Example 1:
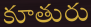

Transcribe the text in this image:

కూతురు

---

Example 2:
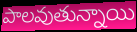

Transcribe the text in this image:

పాలవుతున్నాయి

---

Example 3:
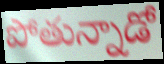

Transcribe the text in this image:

పోతున్నాడో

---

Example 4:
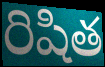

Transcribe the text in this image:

రిషిత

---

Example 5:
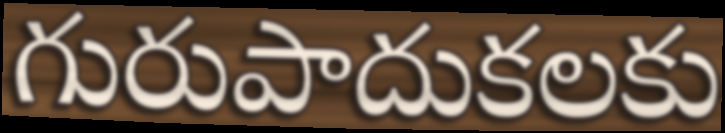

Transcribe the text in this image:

గురుపాదుకలకు